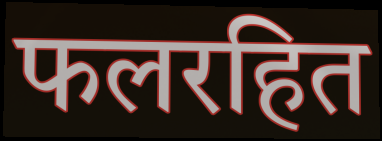
फलरहित